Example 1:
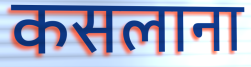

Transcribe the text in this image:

कसलाना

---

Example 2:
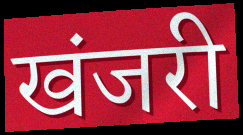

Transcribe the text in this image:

खंजरी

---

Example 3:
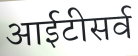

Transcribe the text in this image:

आईटीसर्व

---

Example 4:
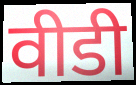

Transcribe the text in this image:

वीडी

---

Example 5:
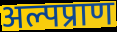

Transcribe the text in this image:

अल्पप्राण